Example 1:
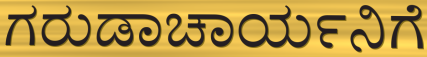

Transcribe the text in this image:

ಗರುಡಾಚಾರ್ಯನಿಗೆ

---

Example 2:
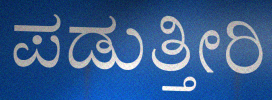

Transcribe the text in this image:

ಪಡುತ್ತೀರಿ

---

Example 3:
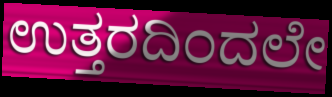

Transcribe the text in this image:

ಉತ್ತರದಿಂದಲೇ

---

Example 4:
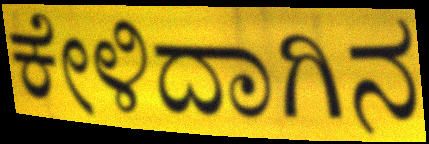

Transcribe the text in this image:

ಕೇಳಿದಾಗಿನ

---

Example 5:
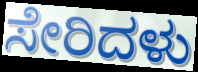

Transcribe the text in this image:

ಸೇರಿದಳು